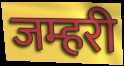
जम्हरी